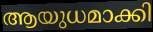
ആയുധമാക്കി